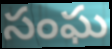
సంఘ